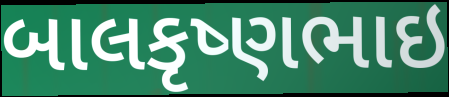
બાલકૃષ્ણભાઇ